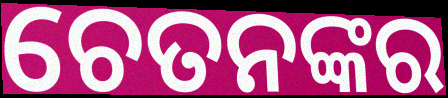
ଚେତନଙ୍କର